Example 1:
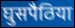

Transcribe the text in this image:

घुसपैठिया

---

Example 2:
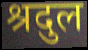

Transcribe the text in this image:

श्रदुल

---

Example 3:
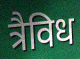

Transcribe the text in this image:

त्रैविध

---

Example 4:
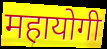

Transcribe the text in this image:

महायोगी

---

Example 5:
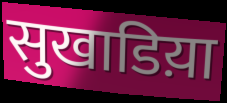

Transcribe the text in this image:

सुखाडिय़ा